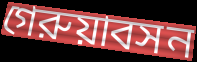
গেরুয়াবসন